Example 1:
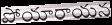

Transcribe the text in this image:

పోయారాయన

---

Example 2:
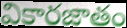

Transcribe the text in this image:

వికారజాతం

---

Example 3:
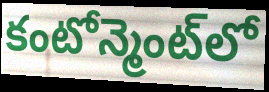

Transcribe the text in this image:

కంటోన్మెంట్‌లో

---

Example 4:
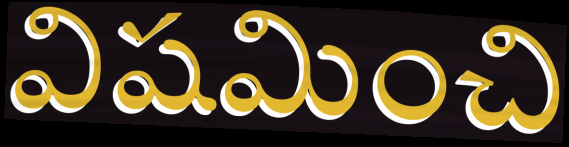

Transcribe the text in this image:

విషమించి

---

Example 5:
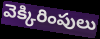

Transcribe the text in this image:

వెక్కిరింపులు